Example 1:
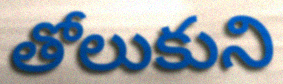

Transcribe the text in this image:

తోలుకుని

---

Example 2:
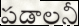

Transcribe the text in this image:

పడాలనీ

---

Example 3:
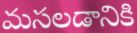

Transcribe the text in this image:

మసలడానికి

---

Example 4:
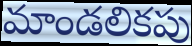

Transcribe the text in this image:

మాండలికపు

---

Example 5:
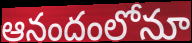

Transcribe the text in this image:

ఆనందంలోనూ